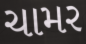
ચામર